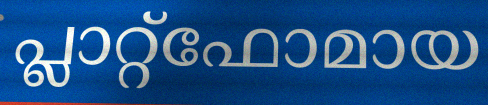
പ്ലാറ്റ്ഫോമായ